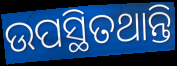
ଉପସ୍ଥିତଥାନ୍ତି